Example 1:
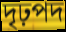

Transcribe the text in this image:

দৃঢ়পদ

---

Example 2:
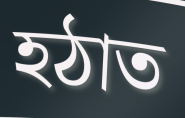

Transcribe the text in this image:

হঠাত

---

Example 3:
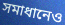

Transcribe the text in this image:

সমাধানেও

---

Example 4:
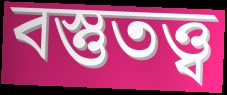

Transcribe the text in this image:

বস্তুতত্ত্ব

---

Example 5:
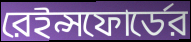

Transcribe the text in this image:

রেইন্সফোর্ডের